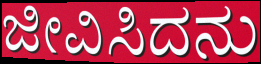
ಜೀವಿಸಿದನು